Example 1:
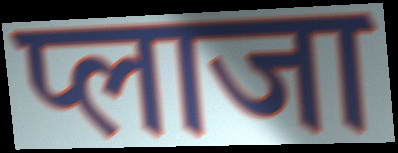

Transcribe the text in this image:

प्‍लाजा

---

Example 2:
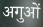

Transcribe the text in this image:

अगुओं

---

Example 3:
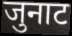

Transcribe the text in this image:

जुनाट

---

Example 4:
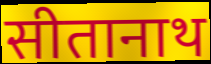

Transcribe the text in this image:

सीतानाथ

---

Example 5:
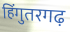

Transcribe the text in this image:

हिंगुतरगढ़